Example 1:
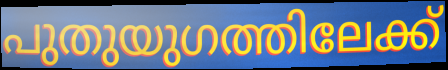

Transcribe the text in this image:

പുതുയുഗത്തിലേക്ക്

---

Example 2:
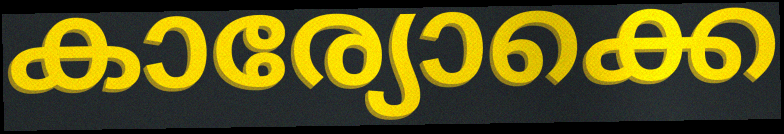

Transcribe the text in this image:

കാര്യോക്കെ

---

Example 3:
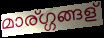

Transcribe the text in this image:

മാര്ഗ്ഗങ്ങള്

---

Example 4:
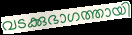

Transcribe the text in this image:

വടക്കുഭാഗത്തായി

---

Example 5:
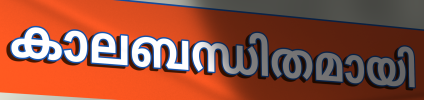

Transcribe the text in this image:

കാലബന്ധിതമായി